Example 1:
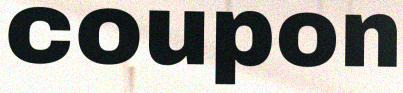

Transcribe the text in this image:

coupon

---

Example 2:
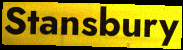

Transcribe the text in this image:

Stansbury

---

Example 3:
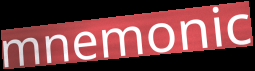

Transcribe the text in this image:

mnemonic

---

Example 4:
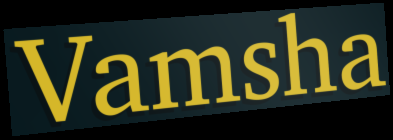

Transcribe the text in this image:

Vamsha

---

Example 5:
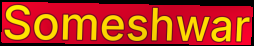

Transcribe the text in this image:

Someshwar